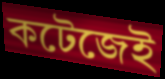
কটেজেই